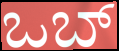
ಒಬ್